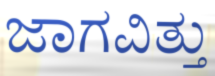
ಜಾಗವಿತ್ತು